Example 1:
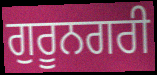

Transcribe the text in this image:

ਗੁਰੂਨਗਰੀ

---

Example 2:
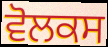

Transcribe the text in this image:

ਵੋਲਕਸ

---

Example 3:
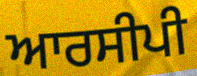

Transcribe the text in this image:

ਆਰਸੀਪੀ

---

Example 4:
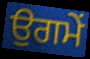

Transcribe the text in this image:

ਉਗਮੇਂ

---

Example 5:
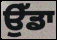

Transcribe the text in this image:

ਉੱਡਾ